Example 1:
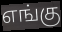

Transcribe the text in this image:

எங்கு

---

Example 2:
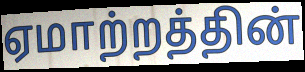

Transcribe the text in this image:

ஏமாற்றத்தின்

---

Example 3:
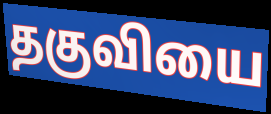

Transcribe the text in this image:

தகுவியை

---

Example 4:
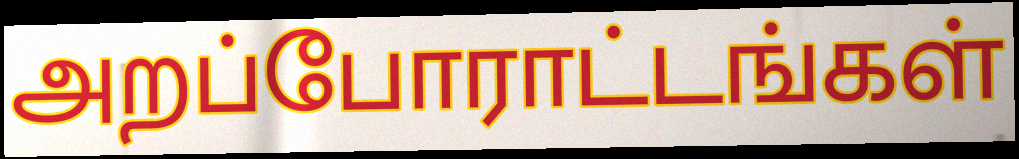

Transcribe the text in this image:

அறப்போராட்டங்கள்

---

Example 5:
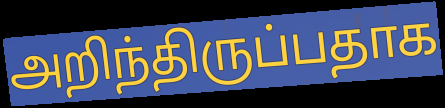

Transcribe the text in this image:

அறிந்திருப்பதாக